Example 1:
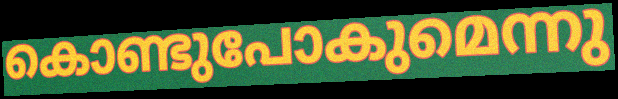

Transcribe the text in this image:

കൊണ്ടുപോകുമെന്നു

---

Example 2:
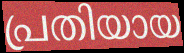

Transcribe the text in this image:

പ്രതിയായ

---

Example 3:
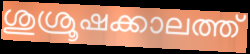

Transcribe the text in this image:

ശുശ്രൂഷക്കാലത്ത്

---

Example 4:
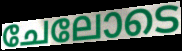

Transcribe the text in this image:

ചേലോടെ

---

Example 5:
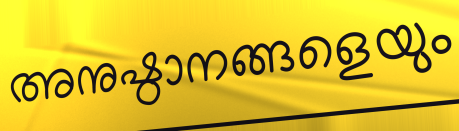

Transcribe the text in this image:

അനുഷ്ഠാനങ്ങളെയും